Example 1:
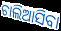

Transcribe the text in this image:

ଚାଲିଆସିବା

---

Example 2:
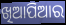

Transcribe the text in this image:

ଖିଆପିଆର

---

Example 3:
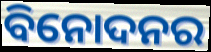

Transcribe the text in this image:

ବିନୋଦନର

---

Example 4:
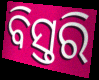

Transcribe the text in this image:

ବିସ୍ତରି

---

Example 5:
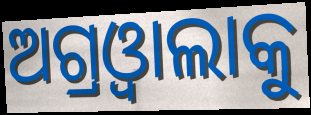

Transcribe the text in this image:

ଅଗ୍ରଓ୍ୱାଲାକୁ